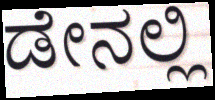
ಡೇನಲ್ಲಿ